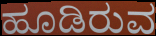
ಹೂಡಿರುವ